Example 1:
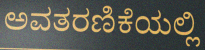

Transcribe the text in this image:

ಅವತರಣಿಕೆಯಲ್ಲಿ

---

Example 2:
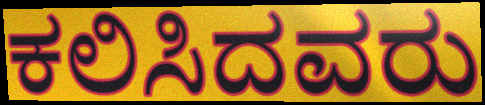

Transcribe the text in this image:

ಕಲಿಸಿದವರು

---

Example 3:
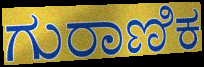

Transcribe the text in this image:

ಗುರಾಣಿಕ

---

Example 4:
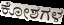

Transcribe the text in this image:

ಕೋಶಗಳ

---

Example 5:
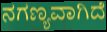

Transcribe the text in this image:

ನಗಣ್ಯವಾಗಿದೆ